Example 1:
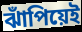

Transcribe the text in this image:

ঝাঁপিয়েই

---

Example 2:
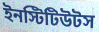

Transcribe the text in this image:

ইনস্টিটিউটস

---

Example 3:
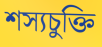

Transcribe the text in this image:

শস্যচুক্তি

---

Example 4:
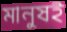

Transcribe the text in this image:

মানুষই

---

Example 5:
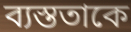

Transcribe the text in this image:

ব্যস্ততাকে